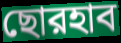
ছোরহাব